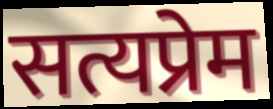
सत्यप्रेम